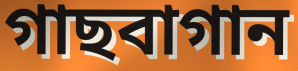
গাছবাগান